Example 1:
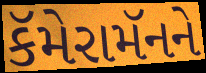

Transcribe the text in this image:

કૅમેરામૅનને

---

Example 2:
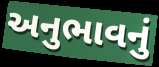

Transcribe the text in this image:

અનુભાવનું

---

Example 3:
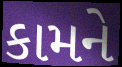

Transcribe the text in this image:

કામને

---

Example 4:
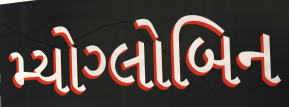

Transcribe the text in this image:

મ્યોગ્લોબિન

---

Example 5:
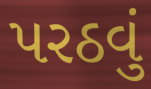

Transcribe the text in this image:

પરઠવું